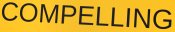
COMPELLING